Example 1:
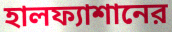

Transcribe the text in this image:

হালফ্যাশানের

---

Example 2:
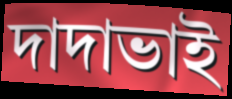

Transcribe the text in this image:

দাদাভাই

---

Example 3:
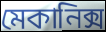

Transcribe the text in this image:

মেকানিক্স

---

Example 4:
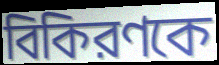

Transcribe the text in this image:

বিকিরণকে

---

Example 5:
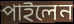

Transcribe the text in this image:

পাইলেন